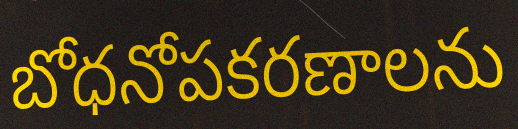
బోధనోపకరణాలను